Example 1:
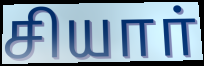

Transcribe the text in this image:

சியார்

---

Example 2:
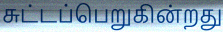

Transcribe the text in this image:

சுட்டப்பெறுகின்றது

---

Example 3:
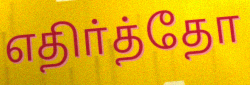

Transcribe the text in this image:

எதிர்த்தோ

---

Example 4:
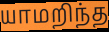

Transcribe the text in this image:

யாமறிந்த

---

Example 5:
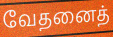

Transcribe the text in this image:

வேதனைத்